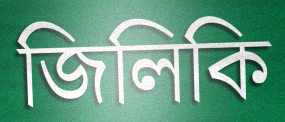
জিলিকি